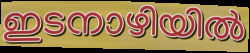
ഇടനാഴിയിൽ